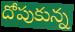
దోపుకున్న